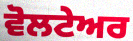
ਵੋਲਟੇਅਰ